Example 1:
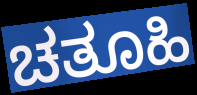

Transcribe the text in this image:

ಚತೂಹಿ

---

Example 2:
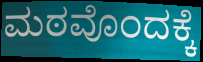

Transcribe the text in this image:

ಮಠವೊಂದಕ್ಕೆ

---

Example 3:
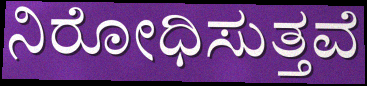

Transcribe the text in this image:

ನಿರೋಧಿಸುತ್ತವೆ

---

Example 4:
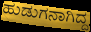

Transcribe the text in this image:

ಹುಡುಗನಾಗಿದ್ದ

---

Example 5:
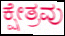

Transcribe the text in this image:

ಕ್ಷೇತ್ರವು